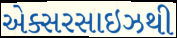
એક્સરસાઇઝથી